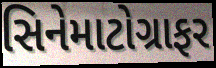
સિનેમાટોગ્રાફર